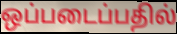
ஒப்படைப்பதில்